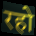
रहो